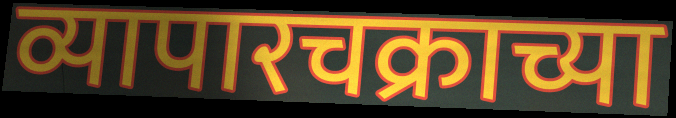
व्यापारचक्राच्या